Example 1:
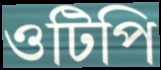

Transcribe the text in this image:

ওটিপি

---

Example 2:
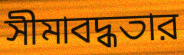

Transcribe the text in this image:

সীমাবদ্ধতার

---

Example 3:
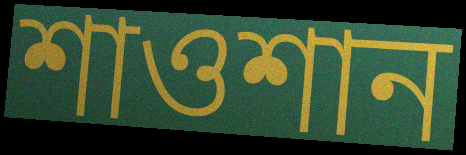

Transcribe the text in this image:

শাওশান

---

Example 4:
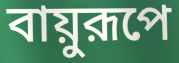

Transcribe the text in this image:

বায়ুরূপে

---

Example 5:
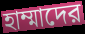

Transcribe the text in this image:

হাম্মাদের